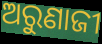
ଅରୁଣାଜୀ